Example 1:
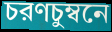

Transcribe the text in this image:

চরণচুম্বনে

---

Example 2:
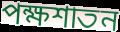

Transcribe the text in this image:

পক্ষশাতন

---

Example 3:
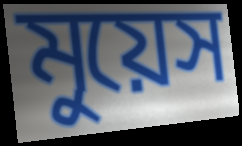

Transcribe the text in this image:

মুয়েস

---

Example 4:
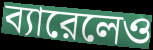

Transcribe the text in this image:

ব্যারেলেও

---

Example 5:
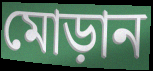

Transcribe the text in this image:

মোড়ান